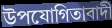
উপযোগিতাবাদী